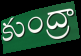
కుంద్రా